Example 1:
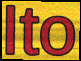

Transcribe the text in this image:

Ito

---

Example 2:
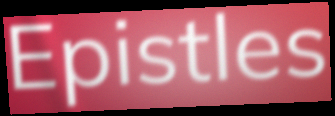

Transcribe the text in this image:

Epistles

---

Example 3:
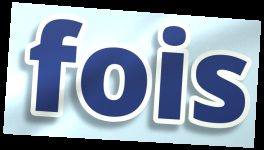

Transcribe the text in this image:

fois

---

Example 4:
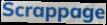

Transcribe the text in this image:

Scrappage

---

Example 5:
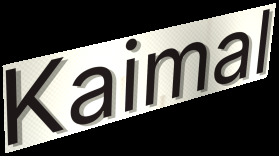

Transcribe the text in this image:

Kaimal